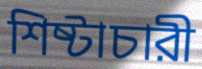
শিষ্টাচারী